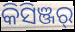
କିସିଞ୍ଜର୍